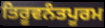
ਤਿਰੂਵਨੰਤਪੂਰਮ